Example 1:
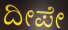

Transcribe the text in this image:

ದೀಪೇ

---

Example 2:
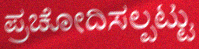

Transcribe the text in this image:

ಪ್ರಚೋದಿಸಲ್ಪಟ್ಟು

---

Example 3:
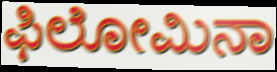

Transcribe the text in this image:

ಫಿಲೋಮಿನಾ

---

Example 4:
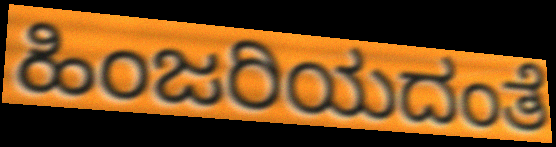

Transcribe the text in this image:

ಹಿಂಜರಿಯದಂತೆ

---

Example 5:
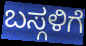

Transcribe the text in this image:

ಬಸ್ಗಳಿಗೆ